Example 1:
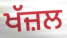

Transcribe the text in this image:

ਖੱਜ਼ਲ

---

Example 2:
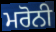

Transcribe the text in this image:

ਮਰੋਨੀ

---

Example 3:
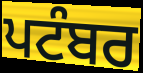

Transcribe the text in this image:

ਪਟੰਬਰ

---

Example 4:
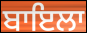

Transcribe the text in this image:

ਬਾਇਲਾ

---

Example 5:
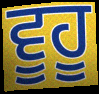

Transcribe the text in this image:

ਵੂਹੂ